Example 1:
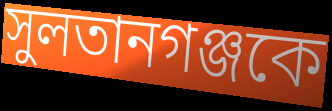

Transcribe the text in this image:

সুলতানগঞ্জকে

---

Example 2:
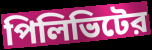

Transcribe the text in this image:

পিলিভিটের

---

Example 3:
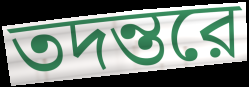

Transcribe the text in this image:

তদন্তরে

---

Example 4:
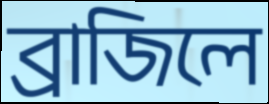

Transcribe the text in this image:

ব্রাজিলে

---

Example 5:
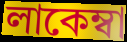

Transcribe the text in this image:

লাকেম্বা